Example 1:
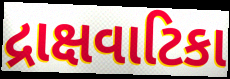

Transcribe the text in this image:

દ્રાક્ષવાટિકા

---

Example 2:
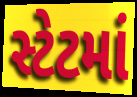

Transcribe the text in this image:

સ્ટેટમાં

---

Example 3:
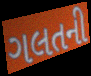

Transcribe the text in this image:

ગલતની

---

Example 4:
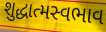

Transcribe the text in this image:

શુદ્ધાત્મસ્વભાવ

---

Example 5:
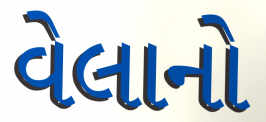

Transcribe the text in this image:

વેલાનો